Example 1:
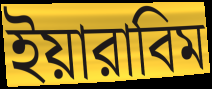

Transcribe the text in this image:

ইয়ারাবিম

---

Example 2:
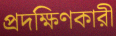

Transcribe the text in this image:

প্রদক্ষিণকারী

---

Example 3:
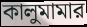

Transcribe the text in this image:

কালুমামার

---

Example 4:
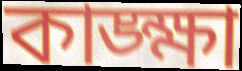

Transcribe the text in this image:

কাঙ্ক্ষা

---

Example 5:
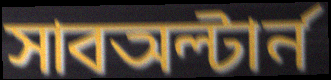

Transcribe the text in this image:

সাবঅল্টার্ন